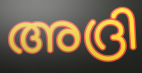
അദ്രി